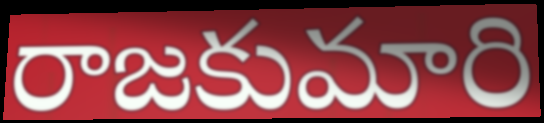
రాజకుమారి